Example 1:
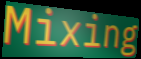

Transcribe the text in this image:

Mixing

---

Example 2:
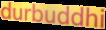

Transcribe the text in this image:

durbuddhi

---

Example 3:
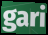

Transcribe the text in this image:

gari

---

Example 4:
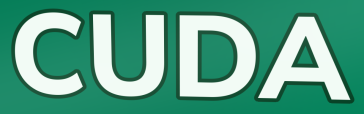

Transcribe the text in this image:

CUDA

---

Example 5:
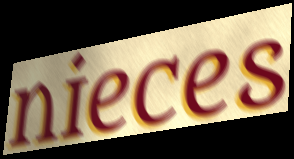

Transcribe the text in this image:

nieces